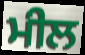
ਮੀਲ